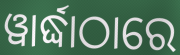
ୱାର୍ଦ୍ଧାଠାରେ